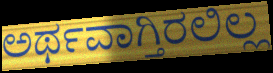
ಅರ್ಥವಾಗ್ತಿರಲಿಲ್ಲ